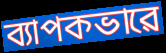
ব্যাপকভাৱে